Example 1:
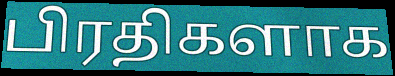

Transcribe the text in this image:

பிரதிகளாக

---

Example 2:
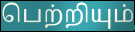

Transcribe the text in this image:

பெற்றியும்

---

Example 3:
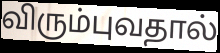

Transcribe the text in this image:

விரும்புவதால்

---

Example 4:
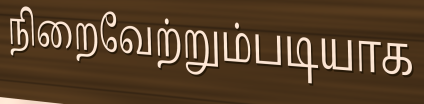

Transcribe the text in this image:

நிறைவேற்றும்படியாக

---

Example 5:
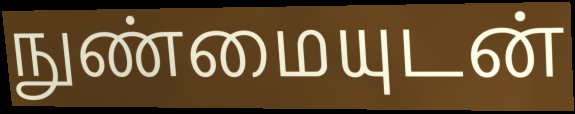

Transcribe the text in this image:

நுண்மையுடன்